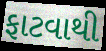
ફાટવાથી